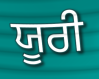
ਯੂਰੀ